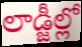
లాడ్జీల్లో